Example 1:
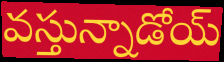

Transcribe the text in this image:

వస్తున్నాడోయ్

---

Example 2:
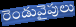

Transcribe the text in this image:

రెండువైపులు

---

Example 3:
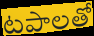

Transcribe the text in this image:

టపాలతో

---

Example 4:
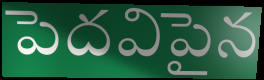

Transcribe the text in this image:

పెదవిపైన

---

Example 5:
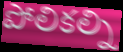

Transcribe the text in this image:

పోలికల్ని